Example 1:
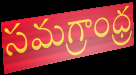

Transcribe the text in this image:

సమగ్రాంధ్ర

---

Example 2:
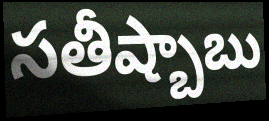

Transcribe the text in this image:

సతీష్బాబు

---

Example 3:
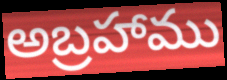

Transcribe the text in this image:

అబ్రహాము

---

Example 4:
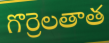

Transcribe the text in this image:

గొర్రెలతాత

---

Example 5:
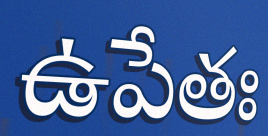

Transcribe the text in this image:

ఉపేతః